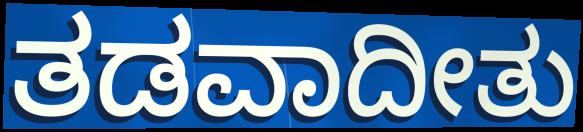
ತಡವಾದೀತು